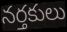
నర్తకులు